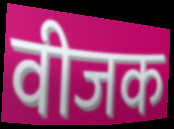
वीजक